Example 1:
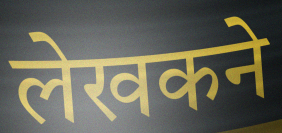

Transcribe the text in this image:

लेखकने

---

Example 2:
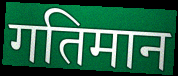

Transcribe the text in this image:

गतिमान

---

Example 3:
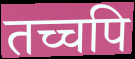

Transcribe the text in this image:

तच्चपि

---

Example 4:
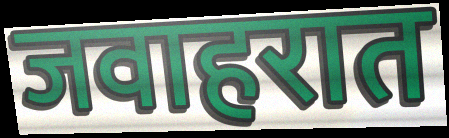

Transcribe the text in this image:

जवाहरात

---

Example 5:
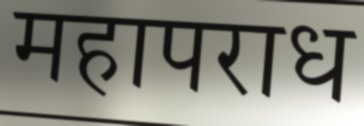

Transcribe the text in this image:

महापराध